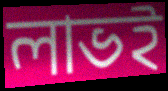
লাভই